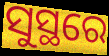
ସୁସ୍ଥରେ